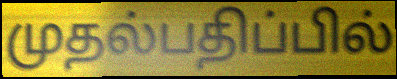
முதல்பதிப்பில்